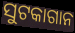
ସୁଟକାଗାନ